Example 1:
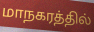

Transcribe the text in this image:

மாநகரத்தில்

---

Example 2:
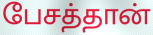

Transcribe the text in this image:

பேசத்தான்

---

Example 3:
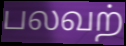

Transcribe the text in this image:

பலவற்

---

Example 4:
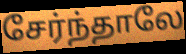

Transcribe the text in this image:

சேர்ந்தாலே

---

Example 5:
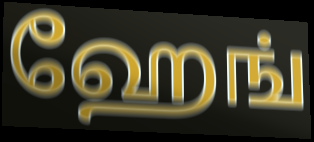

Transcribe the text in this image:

ஹேங்